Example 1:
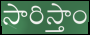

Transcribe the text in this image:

సారిస్తాం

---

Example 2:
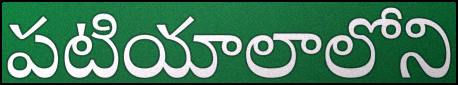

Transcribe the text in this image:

పటియాలాలోని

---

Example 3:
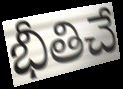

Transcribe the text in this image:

భీతిచే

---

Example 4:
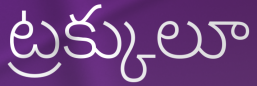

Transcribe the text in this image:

ట్రక్కులూ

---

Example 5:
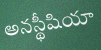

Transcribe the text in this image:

అనస్థీషియా